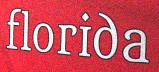
florida